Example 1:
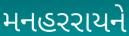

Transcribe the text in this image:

મનહરરાયને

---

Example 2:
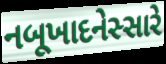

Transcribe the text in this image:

નબૂખાદનેસ્સારે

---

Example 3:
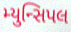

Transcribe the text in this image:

મ્યુન્સિપલ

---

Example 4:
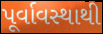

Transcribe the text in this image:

પૂર્વાવસ્થાથી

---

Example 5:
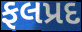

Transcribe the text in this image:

ફલપ્રદ